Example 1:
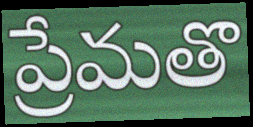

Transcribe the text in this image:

ప్రేమతొ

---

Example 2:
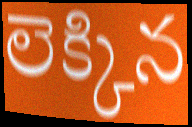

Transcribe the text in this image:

లెక్కిన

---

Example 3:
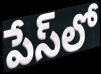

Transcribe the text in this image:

పేస్‌లో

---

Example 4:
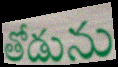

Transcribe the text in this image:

తోడును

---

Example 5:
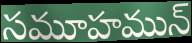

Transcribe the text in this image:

సమూహమున్